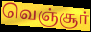
வெஞ்சூர்